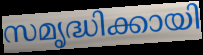
സമൃദ്ധിക്കായി